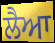
ਲੈਆ